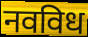
नवविध